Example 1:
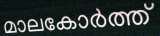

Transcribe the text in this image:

മാലകോർത്ത്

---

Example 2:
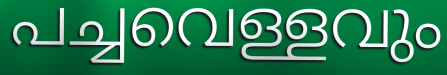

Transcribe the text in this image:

പച്ചവെള്ളവും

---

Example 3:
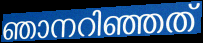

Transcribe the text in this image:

ഞാനറിഞ്ഞത്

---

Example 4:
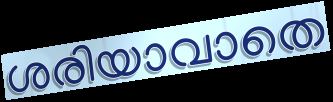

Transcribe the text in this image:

ശരിയാവാതെ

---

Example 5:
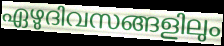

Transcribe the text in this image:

ഏഴുദിവസങ്ങളിലും